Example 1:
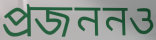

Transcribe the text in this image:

প্রজননও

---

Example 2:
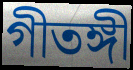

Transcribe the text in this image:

গীতঙ্গী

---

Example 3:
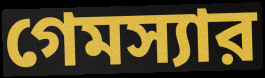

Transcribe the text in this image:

গেমস্যার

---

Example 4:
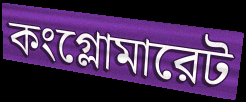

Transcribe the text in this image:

কংগ্লোমারেট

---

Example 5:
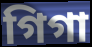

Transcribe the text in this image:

গিগা